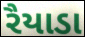
રૈયાડા